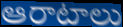
ఆరాటాలు